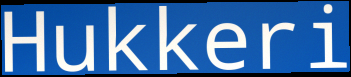
Hukkeri